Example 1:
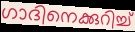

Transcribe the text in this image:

ഗാദിനെക്കുറിച്ച്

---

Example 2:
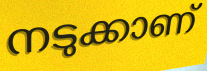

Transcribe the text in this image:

നടുക്കാണ്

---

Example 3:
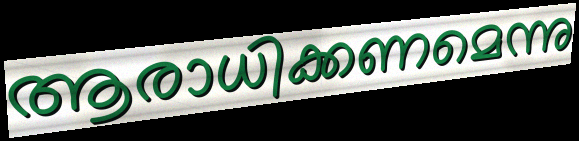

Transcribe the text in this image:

ആരാധിക്കണമെന്നു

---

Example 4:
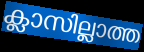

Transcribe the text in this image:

ക്ലാസില്ലാത്ത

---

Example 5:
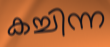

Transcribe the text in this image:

കച്ചിന്ന